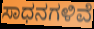
ಸಾಧನಗಳಿವೆ